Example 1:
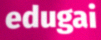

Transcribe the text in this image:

edugai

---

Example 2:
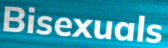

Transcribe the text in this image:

Bisexuals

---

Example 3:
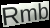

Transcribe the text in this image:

Rmb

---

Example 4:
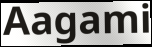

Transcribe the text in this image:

Aagami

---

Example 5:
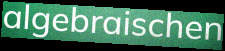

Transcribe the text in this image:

algebraischen